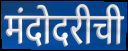
मंदोदरीची